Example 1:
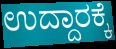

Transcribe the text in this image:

ಉದ್ದಾರಕ್ಕೆ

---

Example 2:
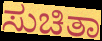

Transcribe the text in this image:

ಸುಚಿತಾ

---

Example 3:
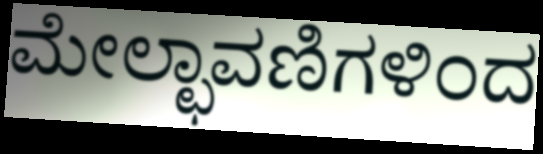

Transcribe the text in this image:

ಮೇಲ್ಛಾವಣಿಗಳಿಂದ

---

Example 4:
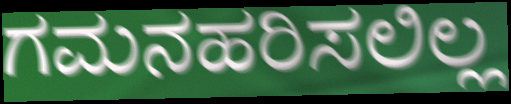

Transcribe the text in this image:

ಗಮನಹರಿಸಲಿಲ್ಲ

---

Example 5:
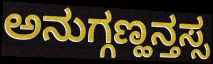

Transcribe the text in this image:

ಅನುಗ್ಗಣ್ಹನ್ತಸ್ಸ